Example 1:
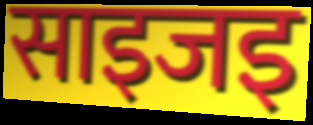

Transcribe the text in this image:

साइजइ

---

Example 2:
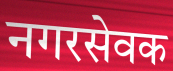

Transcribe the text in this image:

नगरसेवक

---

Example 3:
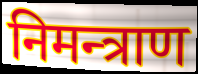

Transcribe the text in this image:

निमन्त्राण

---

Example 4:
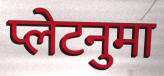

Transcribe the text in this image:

प्लेटनुमा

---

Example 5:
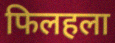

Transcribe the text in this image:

फिलहला